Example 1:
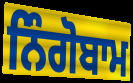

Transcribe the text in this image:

ਨਿੰਗੋਬਾਮ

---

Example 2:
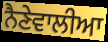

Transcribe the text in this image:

ਨੈਣੇਵਾਲੀਆ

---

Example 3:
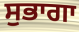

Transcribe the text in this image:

ਸੁਭਾਗਾ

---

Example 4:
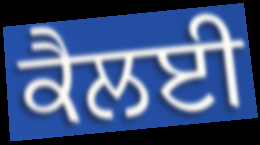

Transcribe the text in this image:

ਕੈਲਈ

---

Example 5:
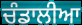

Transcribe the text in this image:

ਚੰਡਾਲੀਆ